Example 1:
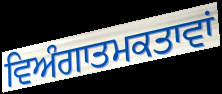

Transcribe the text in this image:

ਵਿਅੰਗਾਤਮਕਤਾਵਾਂ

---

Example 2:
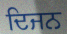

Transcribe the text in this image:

ਦਿਜਨ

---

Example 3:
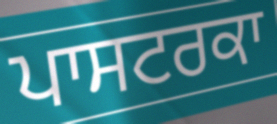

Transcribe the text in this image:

ਪਾਸਟਰਕਾ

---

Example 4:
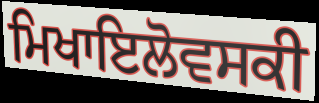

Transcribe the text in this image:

ਮਿਖਾਇਲੋਵਸਕੀ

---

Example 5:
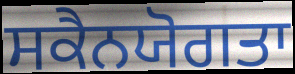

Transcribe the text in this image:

ਸਕੈਨਯੋਗਤਾ